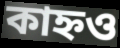
কাহ্নও